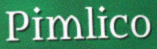
Pimlico